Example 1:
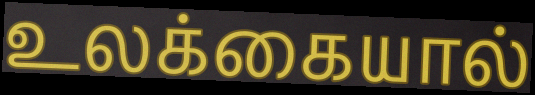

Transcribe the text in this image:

உலக்கையால்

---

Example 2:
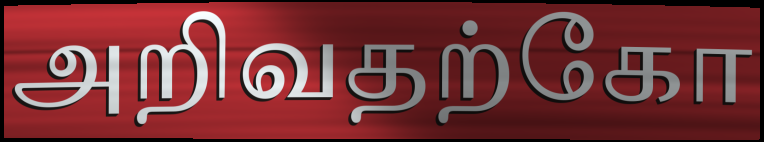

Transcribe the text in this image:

அறிவதற்கோ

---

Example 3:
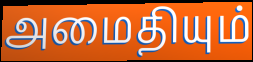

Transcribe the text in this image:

அமைதியும்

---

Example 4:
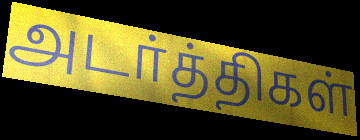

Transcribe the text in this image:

அடர்த்திகள்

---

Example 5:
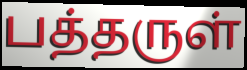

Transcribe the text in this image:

பத்தருள்